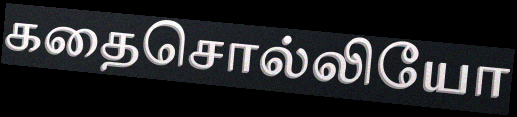
கதைசொல்லியோ